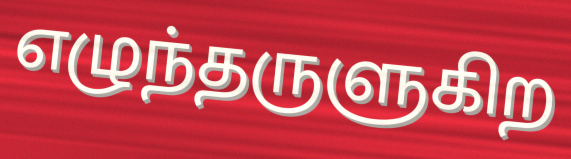
எழுந்தருளுகிற